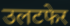
उलटफेर